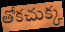
తోకచుక్క